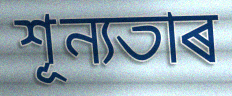
শূন্যতাৰ